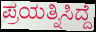
ಪ್ರಯತ್ನಿಸಿದ್ದೆ